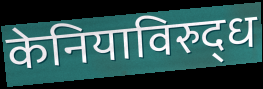
केनियाविरुद्ध